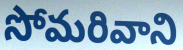
సోమరివాని